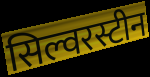
सिल्वरस्टीन